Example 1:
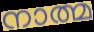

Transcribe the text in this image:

നാത്മ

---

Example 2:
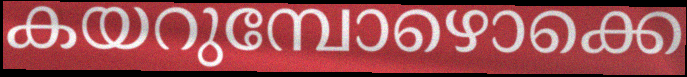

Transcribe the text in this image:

കയറുമ്പോഴൊക്കെ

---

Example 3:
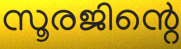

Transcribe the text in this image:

സൂരജിന്റെ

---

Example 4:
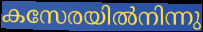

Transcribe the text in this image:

കസേരയിൽനിന്നു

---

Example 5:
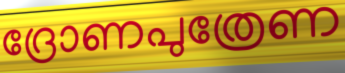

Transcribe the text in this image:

ദ്രോണപുത്രേണ